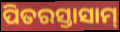
ପିତରସ୍ତାସାମ୍